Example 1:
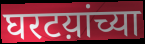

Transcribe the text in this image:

घरटय़ांच्या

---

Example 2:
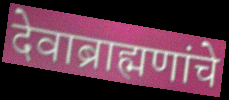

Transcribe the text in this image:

देवाब्राह्मणांचे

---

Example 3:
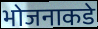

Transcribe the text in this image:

भोजनाकडे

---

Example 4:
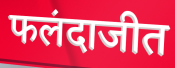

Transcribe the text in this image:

फलंदाजीत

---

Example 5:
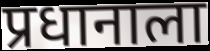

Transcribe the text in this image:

प्रधानाला